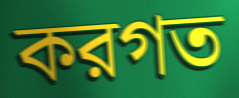
করগত